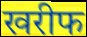
खरीफ